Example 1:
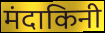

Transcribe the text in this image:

मंदाकिनी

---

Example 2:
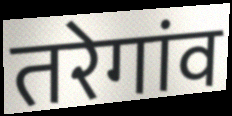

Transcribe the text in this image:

तरेगांव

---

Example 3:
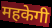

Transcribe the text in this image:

महकेगी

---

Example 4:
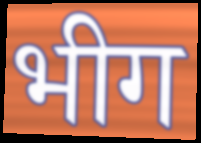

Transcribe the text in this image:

भीग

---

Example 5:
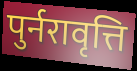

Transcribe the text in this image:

पुर्नरावृत्ति